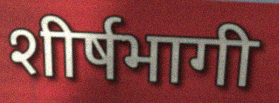
शीर्षभागी